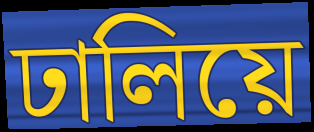
ঢালিয়ে